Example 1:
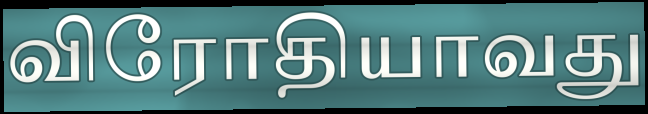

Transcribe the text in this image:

விரோதியாவது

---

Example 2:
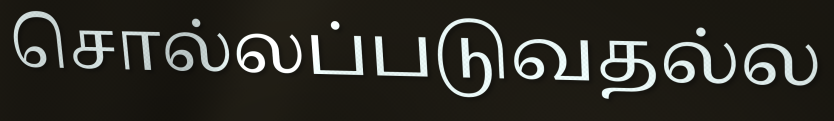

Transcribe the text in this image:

சொல்லப்படுவதல்ல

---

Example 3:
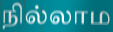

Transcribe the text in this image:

நில்லாம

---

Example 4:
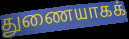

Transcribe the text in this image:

துணையாகக்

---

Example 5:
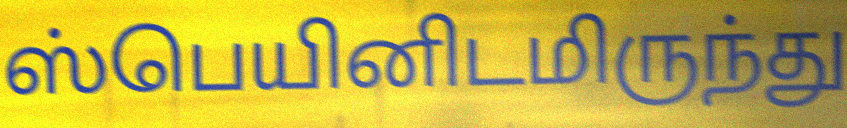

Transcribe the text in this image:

ஸ்பெயினிடமிருந்து